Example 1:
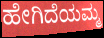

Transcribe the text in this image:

ಹೇಗಿದೆಯಮ್ಮ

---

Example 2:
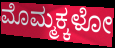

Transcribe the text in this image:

ಮೊಮ್ಮಕ್ಕಳೋ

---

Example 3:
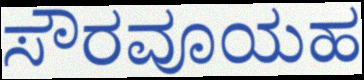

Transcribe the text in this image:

ಸೌರವೂಯಹ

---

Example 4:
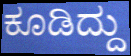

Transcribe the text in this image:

ಕೂಡಿದ್ದು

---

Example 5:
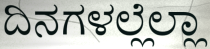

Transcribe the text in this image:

ದಿನಗಳಲ್ಲೆಲ್ಲಾ